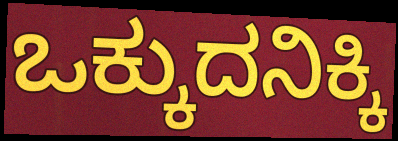
ಒಕ್ಕುದನಿಕ್ಕಿ